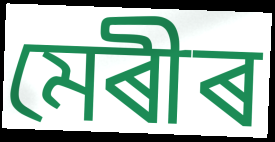
মেৰীৰ